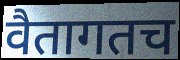
वैतागतच